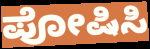
ಪೋಷಿಸಿ